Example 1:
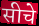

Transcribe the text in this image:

सीचे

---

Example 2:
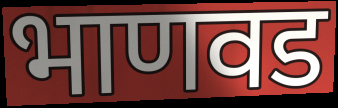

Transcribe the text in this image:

भाणवड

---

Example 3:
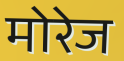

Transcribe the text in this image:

मोरेज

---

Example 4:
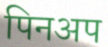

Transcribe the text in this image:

पिनअप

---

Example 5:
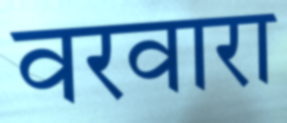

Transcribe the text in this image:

वरवारा